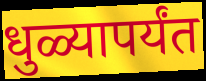
धुळ्यापर्यंत